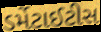
ડર્મેટાઈટીસ